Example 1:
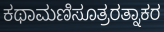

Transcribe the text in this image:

ಕಥಾಮಣಿಸೂತ್ರರತ್ನಾಕರ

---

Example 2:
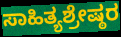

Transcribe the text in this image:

ಸಾಹಿತ್ಯಶ್ರೇಷ್ಠರ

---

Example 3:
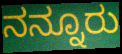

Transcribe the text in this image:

ನನ್ನೂರು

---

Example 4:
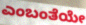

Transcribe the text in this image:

ಎಂಬಂತೆಯೇ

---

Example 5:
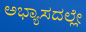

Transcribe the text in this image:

ಅಭ್ಯಾಸದಲ್ಲೇ